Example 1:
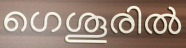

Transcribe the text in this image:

ഗെശൂരിൽ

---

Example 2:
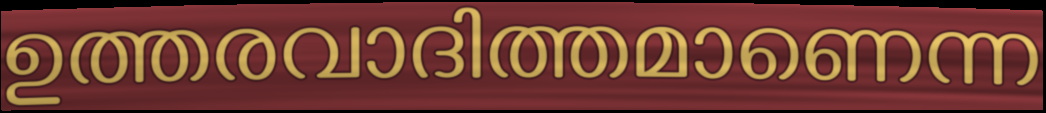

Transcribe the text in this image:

ഉത്തരവാദിത്തമാണെന്ന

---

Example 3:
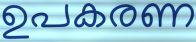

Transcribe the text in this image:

ഉപകരണ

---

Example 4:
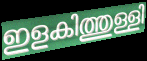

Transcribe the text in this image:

ഇളകിത്തുള്ളി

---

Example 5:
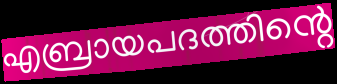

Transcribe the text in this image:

എബ്രായപദത്തിന്റെ